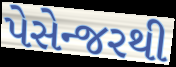
પેસેન્જરથી